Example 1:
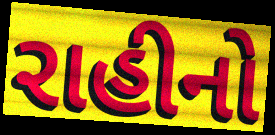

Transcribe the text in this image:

રાહીનો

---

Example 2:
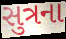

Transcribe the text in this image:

સુત્રના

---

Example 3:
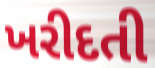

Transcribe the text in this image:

ખરીદતી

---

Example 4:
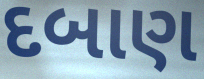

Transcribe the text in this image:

દબાણ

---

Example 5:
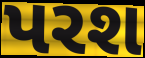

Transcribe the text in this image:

પરશ